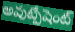
అవుట్పేషెంట్